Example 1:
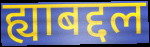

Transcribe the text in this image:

ह्याबद्दल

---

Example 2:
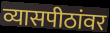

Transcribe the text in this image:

व्यासपीठांवर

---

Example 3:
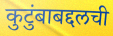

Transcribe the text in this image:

कुटुंबाबद्दलची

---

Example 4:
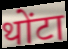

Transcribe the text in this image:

थोंटा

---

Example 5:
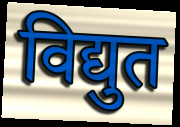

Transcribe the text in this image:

विद्युत